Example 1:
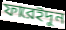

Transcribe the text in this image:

ফারেইদুন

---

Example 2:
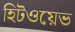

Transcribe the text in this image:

হিটওয়েভ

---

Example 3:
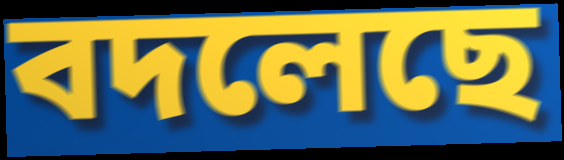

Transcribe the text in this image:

বদলেছে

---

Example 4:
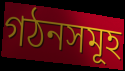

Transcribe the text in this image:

গঠনসমূহ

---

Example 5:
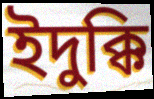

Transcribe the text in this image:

ইদুক্কি